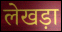
लेखड़ा